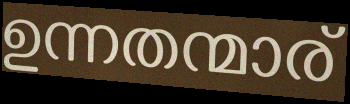
ഉന്നതന്മാര്